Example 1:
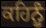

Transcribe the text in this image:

ਕਹਿਨੂੰ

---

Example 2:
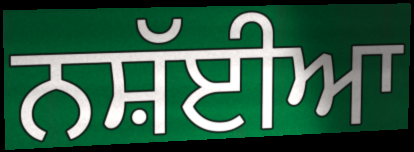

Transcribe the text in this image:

ਨਸ਼ੱਈਆ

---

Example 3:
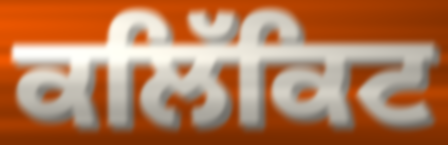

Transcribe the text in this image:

ਕਲਿੱਕਿਟ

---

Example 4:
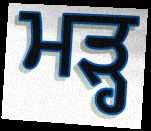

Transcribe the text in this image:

ਮੜ੍ਹ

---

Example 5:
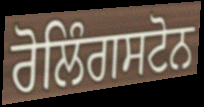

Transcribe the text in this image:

ਰੋਲਿੰਗਸਟੋਨ